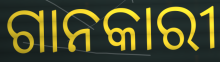
ଗାନକାରୀ